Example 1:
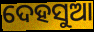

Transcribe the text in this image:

ଦେହସୁଆ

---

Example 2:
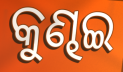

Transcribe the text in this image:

କୁଣ୍ଢଇ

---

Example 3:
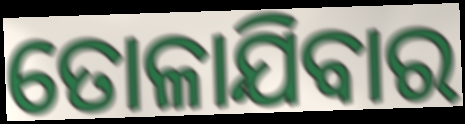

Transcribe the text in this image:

ତୋଳାଯିବାର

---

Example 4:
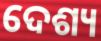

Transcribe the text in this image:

ଦେଶ୍ୟ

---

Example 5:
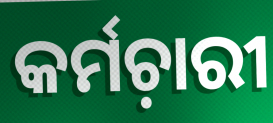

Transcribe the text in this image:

କର୍ମଚ଼ାରୀ